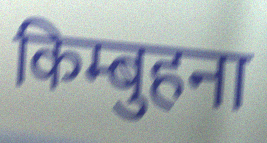
किम्बुहना